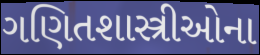
ગણિતશાસ્ત્રીઓના